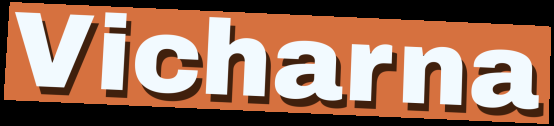
Vicharna